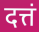
दत्तं